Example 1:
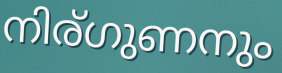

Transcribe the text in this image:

നിര്ഗുണനും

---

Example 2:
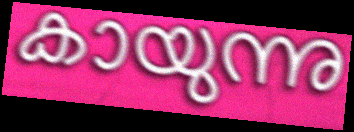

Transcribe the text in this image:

കായുന്നു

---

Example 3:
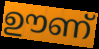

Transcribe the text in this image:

ഊണ്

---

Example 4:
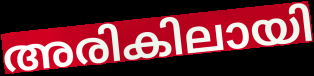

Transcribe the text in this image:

അരികിലായി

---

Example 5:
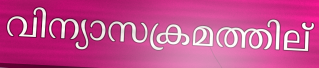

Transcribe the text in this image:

വിന്യാസക്രമത്തില്